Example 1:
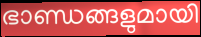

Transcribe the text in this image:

ഭാണ്ഡങ്ങളുമായി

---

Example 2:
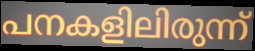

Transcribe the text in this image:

പനകളിലിരുന്ന്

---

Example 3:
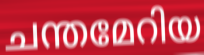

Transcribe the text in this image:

ചന്തമേറിയ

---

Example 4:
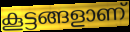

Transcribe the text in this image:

കൂട്ടങ്ങളാണ്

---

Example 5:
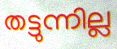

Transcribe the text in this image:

തട്ടുന്നില്ല